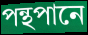
পন্থপানে